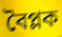
বৈপ্লক